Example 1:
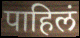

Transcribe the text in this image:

पाहिलं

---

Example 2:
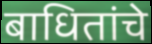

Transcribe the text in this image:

बाधितांचे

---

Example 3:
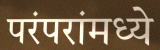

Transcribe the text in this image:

परंपरांमध्ये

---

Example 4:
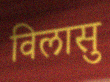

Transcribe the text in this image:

विलासु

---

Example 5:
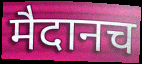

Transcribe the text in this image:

मैदानच